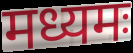
मध्यमः